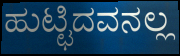
ಹುಟ್ಟಿದವನಲ್ಲ